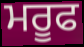
ਮਰੂਫ